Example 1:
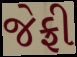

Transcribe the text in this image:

જેફ્રી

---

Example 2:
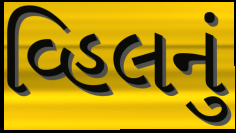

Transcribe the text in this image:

વ્હિલનું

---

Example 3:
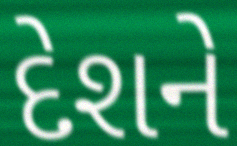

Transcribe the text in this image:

દેશને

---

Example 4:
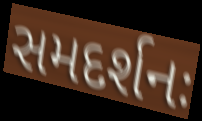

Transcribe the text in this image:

સમદર્શનઃ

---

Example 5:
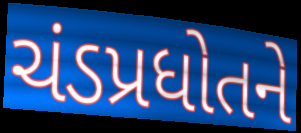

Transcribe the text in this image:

ચંડપ્રધોતને